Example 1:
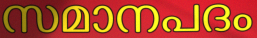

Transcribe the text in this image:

സമാനപദം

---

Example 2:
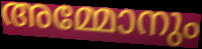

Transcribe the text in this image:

അമ്മോനും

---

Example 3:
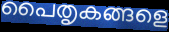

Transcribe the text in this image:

പൈതൃകങ്ങളെ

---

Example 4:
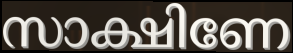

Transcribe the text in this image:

സാക്ഷിണേ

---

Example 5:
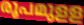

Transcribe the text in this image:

രൂപമുളള